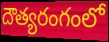
దౌత్యరంగంలో